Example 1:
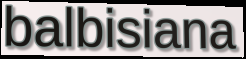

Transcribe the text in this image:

balbisiana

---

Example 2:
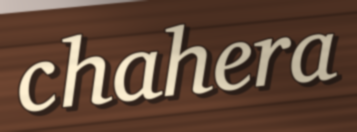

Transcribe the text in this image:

chahera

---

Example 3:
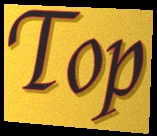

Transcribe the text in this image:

Top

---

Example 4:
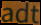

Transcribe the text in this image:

adt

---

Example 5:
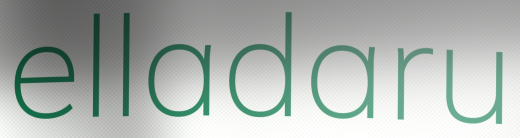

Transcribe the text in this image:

elladaru